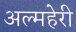
अल्महेरी